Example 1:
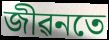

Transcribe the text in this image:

জীৱনতে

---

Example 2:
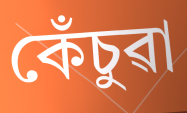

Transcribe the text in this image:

কেঁচুৱা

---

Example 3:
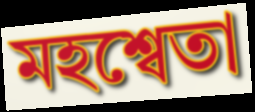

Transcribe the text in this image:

মহশ্বেতা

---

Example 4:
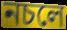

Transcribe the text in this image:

নচলে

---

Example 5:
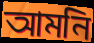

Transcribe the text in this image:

আমনি